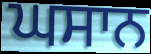
ਘਸਾਨ